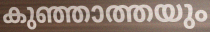
കുഞ്ഞാത്തയും